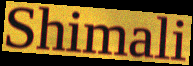
Shimali